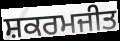
ਸ਼ਕਰਮਜੀਤ